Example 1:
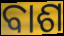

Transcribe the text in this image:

ବାଶ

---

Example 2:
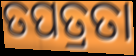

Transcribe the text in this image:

ତପତ୍ରତା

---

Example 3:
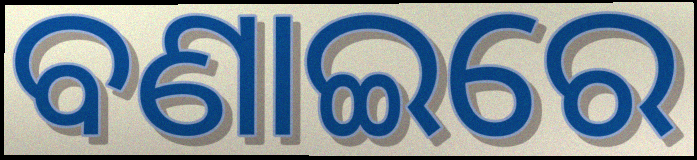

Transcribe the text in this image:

ବଣାଇରେ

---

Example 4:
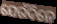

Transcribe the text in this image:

ଯେଉଁଦିନେ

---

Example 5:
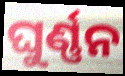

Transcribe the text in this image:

ଘୁର୍ଣ୍ଣନ